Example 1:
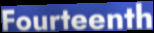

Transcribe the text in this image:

Fourteenth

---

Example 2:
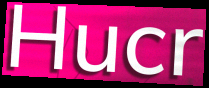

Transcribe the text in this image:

Hucr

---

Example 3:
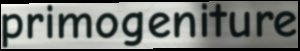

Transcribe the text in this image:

primogeniture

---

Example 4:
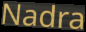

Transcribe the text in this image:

Nadra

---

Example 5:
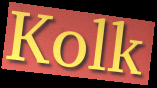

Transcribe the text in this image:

Kolk